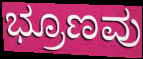
ಭ್ರೂಣವು